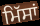
ਮਿੱਸਾਂ